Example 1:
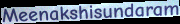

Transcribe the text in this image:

Meenakshisundaram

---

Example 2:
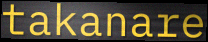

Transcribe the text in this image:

takanare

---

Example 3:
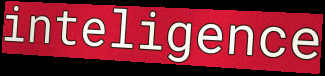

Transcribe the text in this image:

inteligence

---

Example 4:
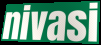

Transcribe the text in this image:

nivasi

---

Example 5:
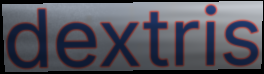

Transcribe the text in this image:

dextris